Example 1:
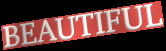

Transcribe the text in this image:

BEAUTIFUL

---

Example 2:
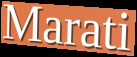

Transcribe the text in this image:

Marati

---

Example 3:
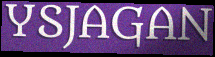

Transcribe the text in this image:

YSJAGAN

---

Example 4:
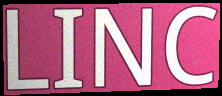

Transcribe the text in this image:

LINC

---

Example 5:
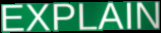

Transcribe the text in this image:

EXPLAIN